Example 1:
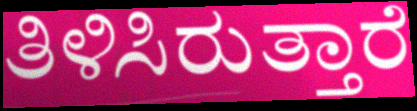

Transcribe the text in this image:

ತಿಳಿಸಿರುತ್ತಾರೆ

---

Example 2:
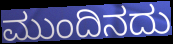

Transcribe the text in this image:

ಮುಂದಿನದು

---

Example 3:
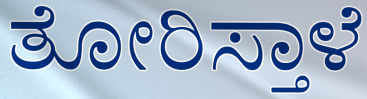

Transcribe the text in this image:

ತೋರಿಸ್ತಾಳೆ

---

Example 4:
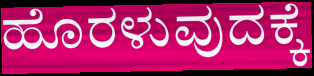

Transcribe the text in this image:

ಹೊರಳುವುದಕ್ಕೆ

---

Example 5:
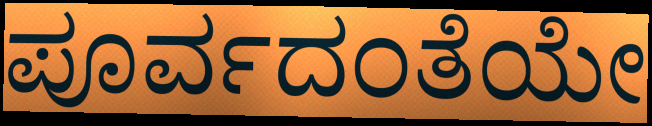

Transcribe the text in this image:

ಪೂರ್ವದಂತೆಯೇ